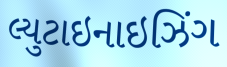
લ્યુટાઇનાઇઝિંગ